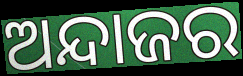
ଅନ୍ଦାଜର